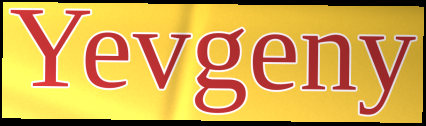
Yevgeny